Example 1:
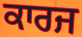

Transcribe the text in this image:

ਕਾਰਜ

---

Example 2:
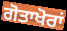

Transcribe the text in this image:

ਗੋਤਾਖੋਰਾਂ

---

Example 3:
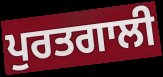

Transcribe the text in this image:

ਪੁਰਤਗਾਲੀ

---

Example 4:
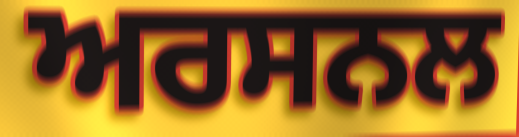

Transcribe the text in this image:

ਅਰਸਨਲ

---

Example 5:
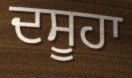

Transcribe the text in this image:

ਦਸੂਹਾ